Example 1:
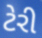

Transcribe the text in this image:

ટેરી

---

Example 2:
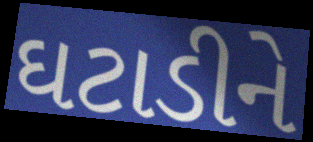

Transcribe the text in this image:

ઘટાડીને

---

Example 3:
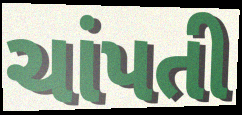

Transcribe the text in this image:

ચાંપતી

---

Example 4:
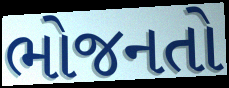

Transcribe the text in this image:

ભોજનતો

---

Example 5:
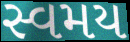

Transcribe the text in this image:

સ્વમય